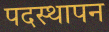
पदस्थापन